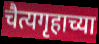
चैत्यगृहाच्या